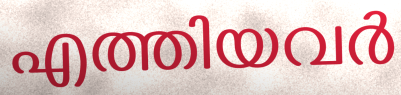
എത്തിയവർ